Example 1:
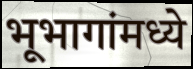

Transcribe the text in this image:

भूभागांमध्ये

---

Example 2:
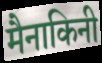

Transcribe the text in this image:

मैनाकिनी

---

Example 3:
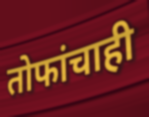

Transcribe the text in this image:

तोफांचाही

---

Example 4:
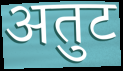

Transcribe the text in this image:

अतुट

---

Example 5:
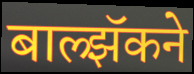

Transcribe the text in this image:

बाल्झॅकने